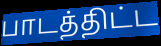
பாடத்திட்ட